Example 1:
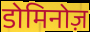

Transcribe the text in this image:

डोमिनोज़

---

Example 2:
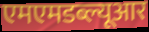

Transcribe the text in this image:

एमएमडब्ल्यूआर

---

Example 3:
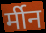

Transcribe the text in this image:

र्मीन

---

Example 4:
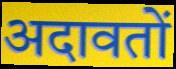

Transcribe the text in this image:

अदावतों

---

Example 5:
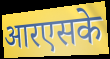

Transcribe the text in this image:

आरएसके